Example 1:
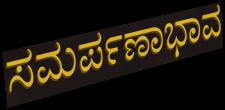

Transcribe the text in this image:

ಸಮರ್ಪಣಾಭಾವ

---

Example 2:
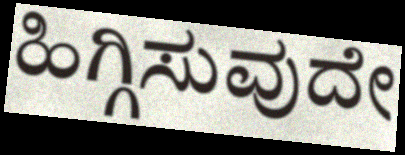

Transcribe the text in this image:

ಹಿಗ್ಗಿಸುವುದೇ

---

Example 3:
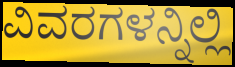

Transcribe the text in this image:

ವಿವರಗಳನ್ನಿಲ್ಲಿ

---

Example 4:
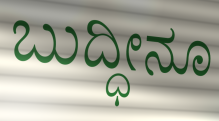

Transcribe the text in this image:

ಬುದ್ಧೀನೂ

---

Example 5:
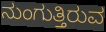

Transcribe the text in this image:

ನುಂಗುತ್ತಿರುವ